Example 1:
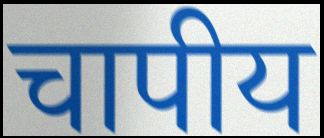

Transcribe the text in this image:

चापीय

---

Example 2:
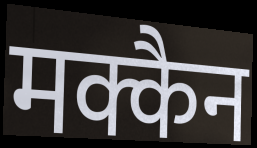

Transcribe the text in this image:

मक्कैन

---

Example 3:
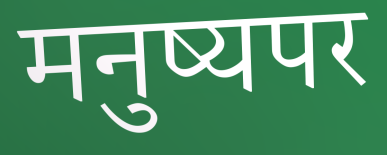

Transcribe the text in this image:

मनुष्यपर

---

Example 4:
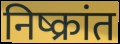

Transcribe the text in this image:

निष्क्रांत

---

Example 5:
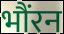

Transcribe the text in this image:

भौंरन